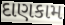
દાણકામ